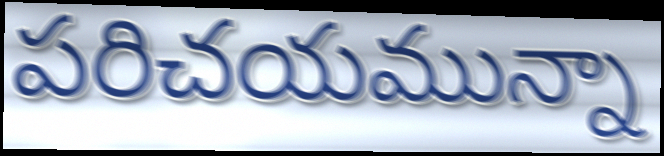
పరిచయమున్నా